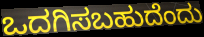
ಒದಗಿಸಬಹುದೆಂದು